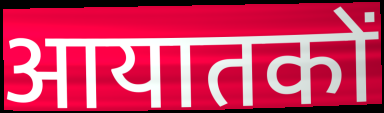
आयातकों